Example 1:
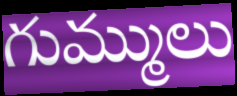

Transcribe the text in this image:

గుమ్ములు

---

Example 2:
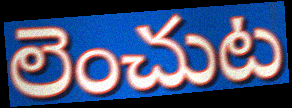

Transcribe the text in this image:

లెంచుట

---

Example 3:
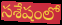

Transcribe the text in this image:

సశేషంలో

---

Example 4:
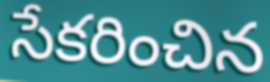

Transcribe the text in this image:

సేకరించిన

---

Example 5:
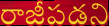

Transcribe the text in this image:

రాజీపడని